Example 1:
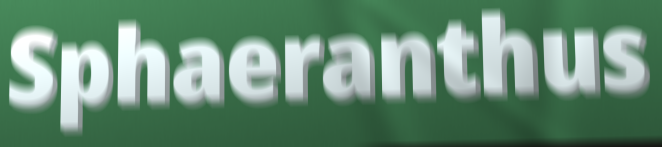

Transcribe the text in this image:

Sphaeranthus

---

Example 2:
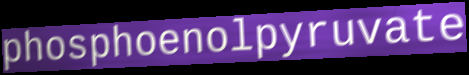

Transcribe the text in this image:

phosphoenolpyruvate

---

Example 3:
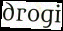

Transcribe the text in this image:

drogi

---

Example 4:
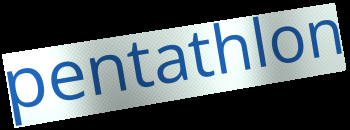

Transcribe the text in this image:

pentathlon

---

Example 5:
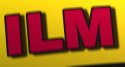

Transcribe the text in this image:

ILM